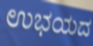
ಉಭಯದ